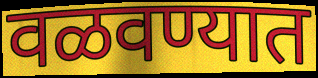
वळवण्यात